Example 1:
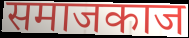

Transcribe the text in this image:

समाजकाज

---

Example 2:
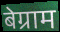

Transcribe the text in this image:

बेग्राम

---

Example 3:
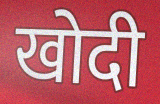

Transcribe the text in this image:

खोदी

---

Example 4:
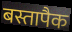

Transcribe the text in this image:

बस्तापैक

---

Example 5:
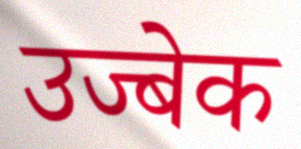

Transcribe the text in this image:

उज्बेक